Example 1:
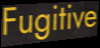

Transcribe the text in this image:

Fugitive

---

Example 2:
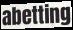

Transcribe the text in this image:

abetting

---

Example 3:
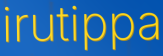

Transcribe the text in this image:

irutippa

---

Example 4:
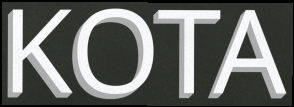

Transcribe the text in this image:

KOTA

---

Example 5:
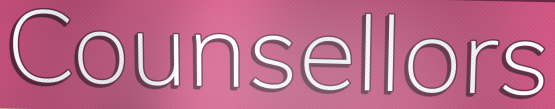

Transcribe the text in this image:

Counsellors